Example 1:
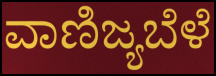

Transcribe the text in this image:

ವಾಣಿಜ್ಯಬೆಳೆ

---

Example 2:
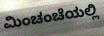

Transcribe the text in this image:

ಮಿಂಚಂಚೆಯಲ್ಲಿ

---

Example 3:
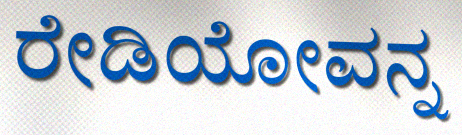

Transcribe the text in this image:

ರೇಡಿಯೋವನ್ನ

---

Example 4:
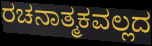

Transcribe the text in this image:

ರಚನಾತ್ಮಕವಲ್ಲದ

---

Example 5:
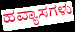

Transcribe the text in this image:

ಹವ್ಯಾಸಗಳು